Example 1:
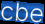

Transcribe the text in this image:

cbe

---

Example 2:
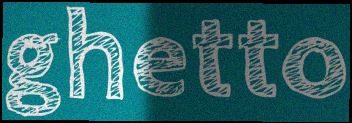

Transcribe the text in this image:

ghetto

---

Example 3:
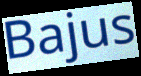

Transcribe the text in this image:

Bajus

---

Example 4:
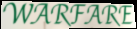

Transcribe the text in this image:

WARFARE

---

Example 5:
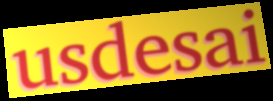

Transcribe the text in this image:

usdesai